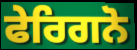
ਫੇਰਿਗਨੋ